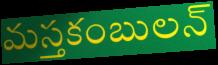
మస్తకంబులన్